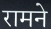
रामने